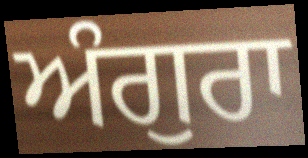
ਅੰਗੁਰਾ